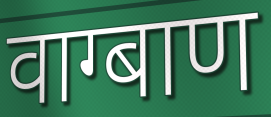
वाग्बाण